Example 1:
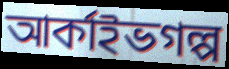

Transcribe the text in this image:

আর্কাইভগল্প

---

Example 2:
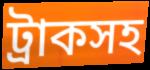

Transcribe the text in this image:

ট্রাকসহ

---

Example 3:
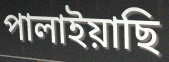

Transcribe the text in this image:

পালাইয়াছি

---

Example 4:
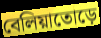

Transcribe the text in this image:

বেলিয়াতোড়ে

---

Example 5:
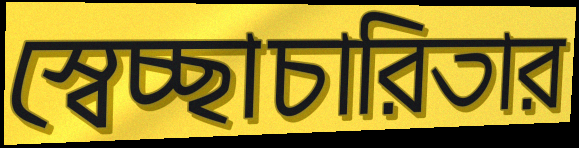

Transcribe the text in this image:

স্বেচ্ছাচারিতার